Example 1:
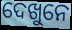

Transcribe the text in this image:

ଦେଖୁନେ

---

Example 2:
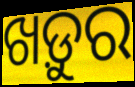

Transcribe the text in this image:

ଖଡ଼ୁର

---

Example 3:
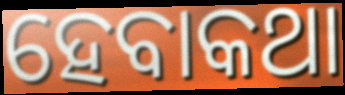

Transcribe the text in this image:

ହେବାକଥା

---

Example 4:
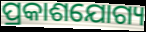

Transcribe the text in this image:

ପ୍ରକାଶଯୋଗ୍ୟ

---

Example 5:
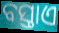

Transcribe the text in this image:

ବସ୍ତାଏ